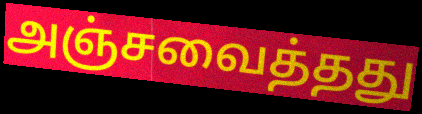
அஞ்சவைத்தது